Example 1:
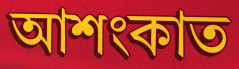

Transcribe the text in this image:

আশংকাত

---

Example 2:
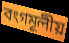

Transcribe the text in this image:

বংগমূলীয়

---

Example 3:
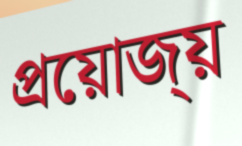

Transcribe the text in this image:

প্ৰয়োজ্য়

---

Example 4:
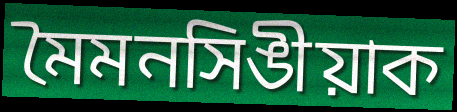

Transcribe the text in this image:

মৈমনসিঙীয়াক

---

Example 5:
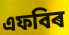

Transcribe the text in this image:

এফবিৰ